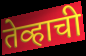
तेव्हाची